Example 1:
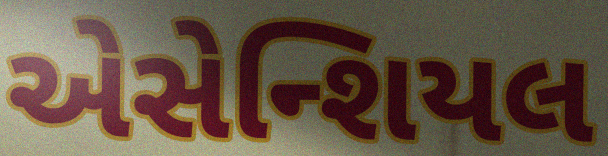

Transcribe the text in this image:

એસેન્શિયલ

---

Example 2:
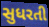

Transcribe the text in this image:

સુધરતી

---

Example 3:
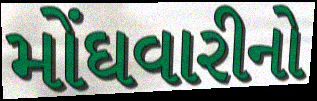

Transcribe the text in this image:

મોંઘવારીનો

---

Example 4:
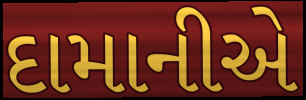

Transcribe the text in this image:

દામાનીએ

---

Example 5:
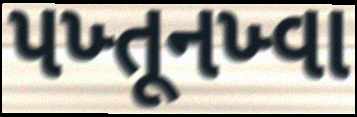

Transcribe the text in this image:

પખ્તૂનખ્વા